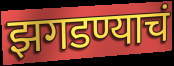
झगडण्याचं